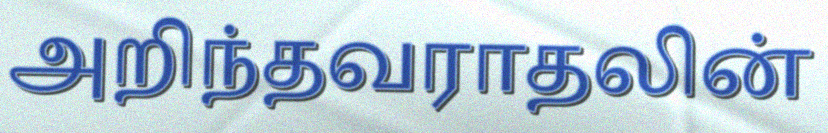
அறிந்தவராதலின்